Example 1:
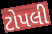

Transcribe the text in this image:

ટોપલી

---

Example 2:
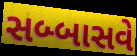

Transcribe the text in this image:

સબ્બાસવે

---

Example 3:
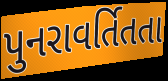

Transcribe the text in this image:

પુનરાવર્તિતતા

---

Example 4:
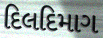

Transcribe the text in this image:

દિલદિમાગ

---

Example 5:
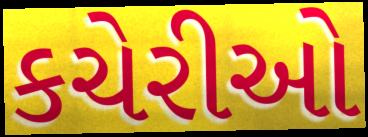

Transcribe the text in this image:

કચેરીઓ